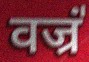
वज्रं॑